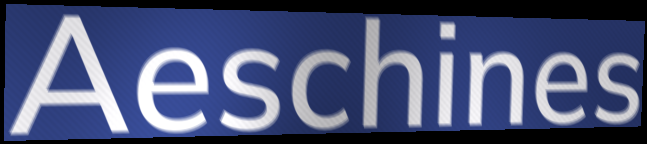
Aeschines